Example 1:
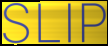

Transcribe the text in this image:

SLIP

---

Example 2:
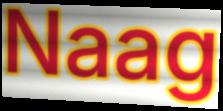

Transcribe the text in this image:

Naag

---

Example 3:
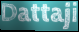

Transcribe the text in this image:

Dattaji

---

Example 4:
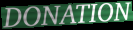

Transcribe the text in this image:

DONATION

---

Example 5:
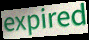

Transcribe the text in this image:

expired